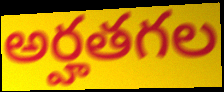
అర్హతగల